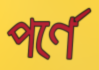
পর্ণে